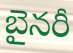
బైనరీ